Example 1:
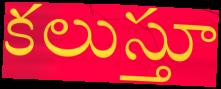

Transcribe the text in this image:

కలుస్తూ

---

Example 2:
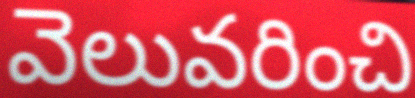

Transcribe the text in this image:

వెలువరించి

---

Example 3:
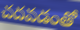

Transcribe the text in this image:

చదవడంతో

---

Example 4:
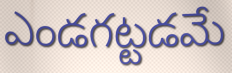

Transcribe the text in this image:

ఎండగట్టడమే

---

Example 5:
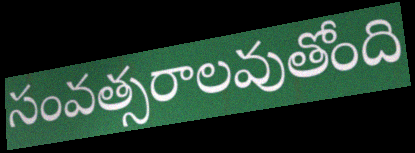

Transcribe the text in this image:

సంవత్సరాలవుతోంది